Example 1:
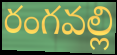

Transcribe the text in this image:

రంగవల్లి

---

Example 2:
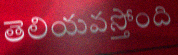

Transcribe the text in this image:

తెలియవస్తోంది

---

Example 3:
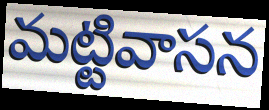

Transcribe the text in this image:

మట్టివాసన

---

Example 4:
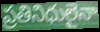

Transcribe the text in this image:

ప్రతినిధులైనా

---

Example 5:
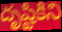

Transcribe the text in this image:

దృష్టికిని